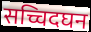
सच्चिदघन